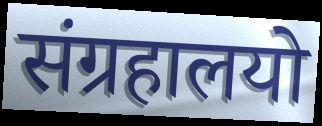
संग्रहालयो